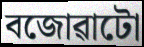
বজোৱাটো